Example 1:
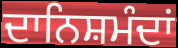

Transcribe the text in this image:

ਦਾਨਿਸ਼ਮੰਦਾਂ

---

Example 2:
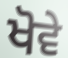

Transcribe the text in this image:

ਖੋਵੇ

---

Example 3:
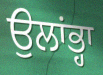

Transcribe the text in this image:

ਉਲਾਂਭ੍ਹਾ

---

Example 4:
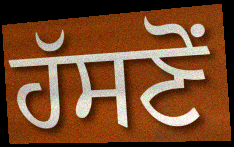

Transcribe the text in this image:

ਹੱਸਣੋਂ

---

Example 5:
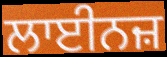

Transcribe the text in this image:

ਲਾਈਨਜ਼